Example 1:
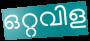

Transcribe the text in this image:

ഒറ്റവിള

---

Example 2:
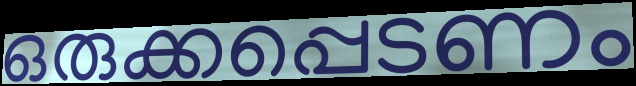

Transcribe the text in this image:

ഒരുക്കപ്പെടണം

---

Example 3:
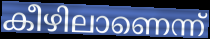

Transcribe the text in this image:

കീഴിലാണെന്ന്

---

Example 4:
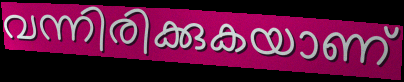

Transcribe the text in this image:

വന്നിരിക്കുകയാണ്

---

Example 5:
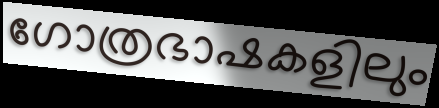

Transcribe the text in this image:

ഗോത്രഭാഷകളിലും